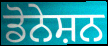
ਡੋਨੇਸ਼ਨ